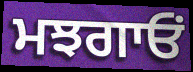
ਮਝਗਾਓਂ